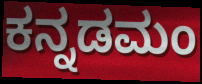
ಕನ್ನಡಮಂ